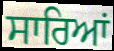
ਸਾਰਿਆਂ